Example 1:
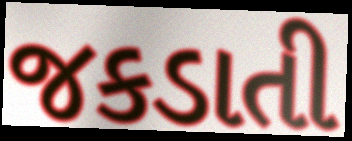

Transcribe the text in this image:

જકડાતી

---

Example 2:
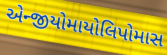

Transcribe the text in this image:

એન્જીયોમાયોલિપોમાસ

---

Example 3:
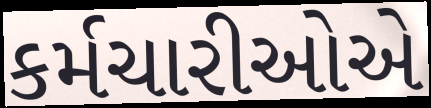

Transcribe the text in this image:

કર્મચારીઓએ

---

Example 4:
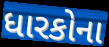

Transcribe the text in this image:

ધારકોના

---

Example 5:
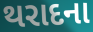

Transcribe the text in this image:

થરાદના